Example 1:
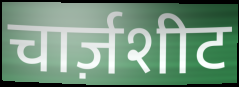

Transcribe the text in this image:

चार्ज़शीट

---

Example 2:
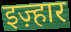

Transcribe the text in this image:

इज़्हार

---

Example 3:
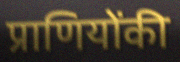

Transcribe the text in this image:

प्राणियोंकी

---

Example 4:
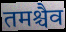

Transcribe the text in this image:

तमश्चैव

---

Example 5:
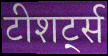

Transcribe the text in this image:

टीशर्ट्स